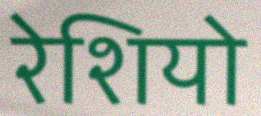
रेशियो